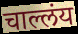
चाल्लंय